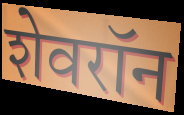
शेवरॉन